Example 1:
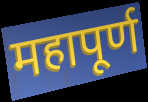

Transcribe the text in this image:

महापूर्ण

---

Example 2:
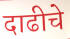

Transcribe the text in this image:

दाढीचे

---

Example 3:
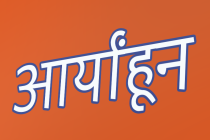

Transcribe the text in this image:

आर्यांहून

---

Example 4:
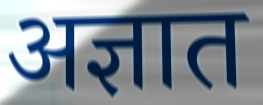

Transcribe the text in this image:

अज्ञात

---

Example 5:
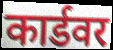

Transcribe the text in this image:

कार्डवर